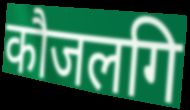
कौजलगि